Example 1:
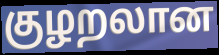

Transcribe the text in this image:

குழறலான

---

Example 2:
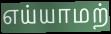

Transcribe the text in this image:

எய்யாமற்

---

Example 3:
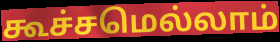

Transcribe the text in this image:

கூச்சமெல்லாம்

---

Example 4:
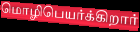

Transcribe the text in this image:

மொழிபெயர்க்கிறார்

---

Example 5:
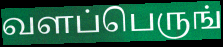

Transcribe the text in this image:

வளப்பெருங்